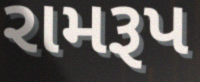
રામરૂપ